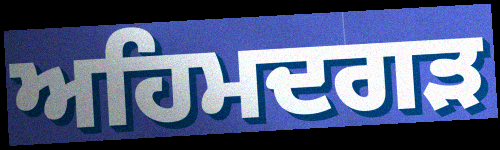
ਅਹਿਮਦਗੜ